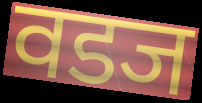
वडज